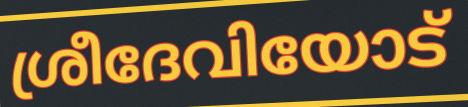
ശ്രീദേവിയോട്